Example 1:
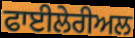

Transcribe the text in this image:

ਫਾਈਲੇਰੀਅਲ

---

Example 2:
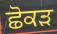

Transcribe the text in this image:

ਛੋਕੜ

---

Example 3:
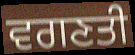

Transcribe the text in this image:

ਵਗਣਤੀ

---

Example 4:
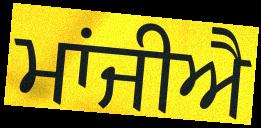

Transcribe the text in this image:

ਮਾਂਜੀਐ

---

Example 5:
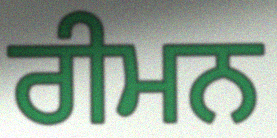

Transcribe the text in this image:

ਰੀਮਨ